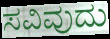
ಸವಿವುದು